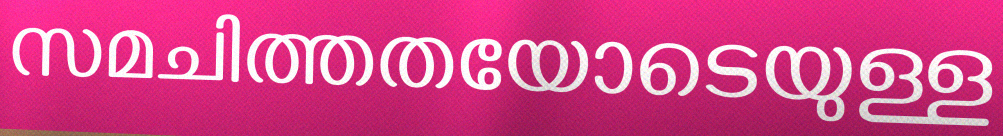
സമചിത്തതയോടെയുള്ള